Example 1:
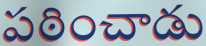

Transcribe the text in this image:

పఠించాడు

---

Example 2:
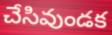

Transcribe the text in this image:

చేసివుండక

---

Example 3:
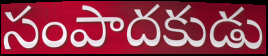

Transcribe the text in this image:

సంపాదకుడు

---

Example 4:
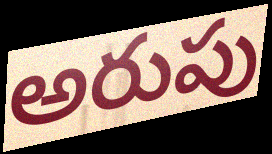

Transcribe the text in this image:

అరుపు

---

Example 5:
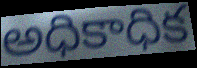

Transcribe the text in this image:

అధికాధిక